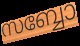
സബ്ബോ